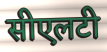
सीएलटी